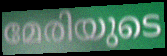
മേരിയുടെ